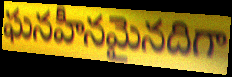
ఘనహీనమైనదిగా